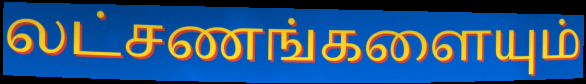
லட்சணங்களையும்